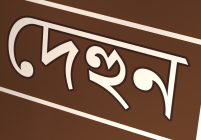
দেহুন